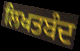
ਲਿਖਤਬੰਦ